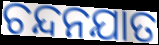
ଚନ୍ଦନଯାତ